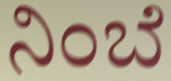
ನಿಂಬೆ